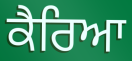
ਕੈਰਿਆ